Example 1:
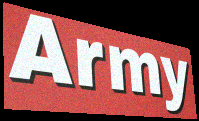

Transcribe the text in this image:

Army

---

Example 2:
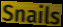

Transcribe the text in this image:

Snails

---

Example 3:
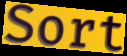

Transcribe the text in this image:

Sort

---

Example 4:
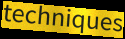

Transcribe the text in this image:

techniques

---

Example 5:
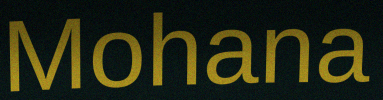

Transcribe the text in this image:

Mohana